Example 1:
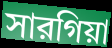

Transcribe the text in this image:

সারগিয়া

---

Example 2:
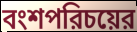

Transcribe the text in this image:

বংশপরিচয়ের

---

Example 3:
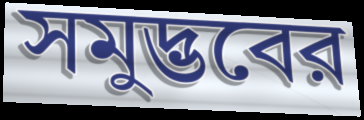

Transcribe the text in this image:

সমুদ্ভবের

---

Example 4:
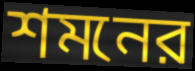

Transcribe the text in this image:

শমনের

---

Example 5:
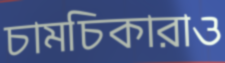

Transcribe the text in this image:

চামচিকারাও